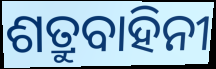
ଶତ୍ରୁବାହିନୀ